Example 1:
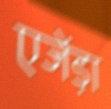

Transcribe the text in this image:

एजेंड़ा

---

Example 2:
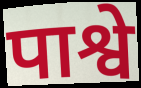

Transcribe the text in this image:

पाश्वे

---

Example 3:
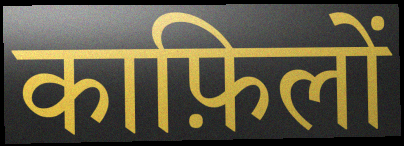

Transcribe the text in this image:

काफ़िलों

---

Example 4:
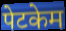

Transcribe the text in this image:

पेटकेम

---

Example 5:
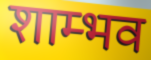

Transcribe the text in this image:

शाम्भव